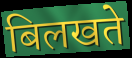
बिलखते